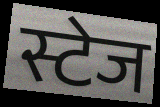
स्‍टेज